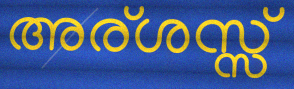
അര്ശസ്സ്